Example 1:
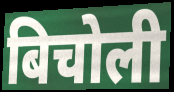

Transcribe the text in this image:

बिचोली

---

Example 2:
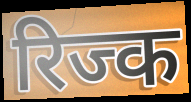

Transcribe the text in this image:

रिज्क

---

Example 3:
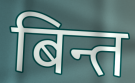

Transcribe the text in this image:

बिन्त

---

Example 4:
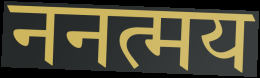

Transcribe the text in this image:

ननत्मय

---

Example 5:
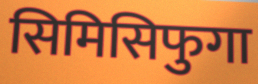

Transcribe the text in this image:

सिमिसिफुगा